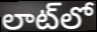
లాట్‌లో